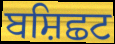
ਬਸ਼ਿਛਟ